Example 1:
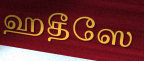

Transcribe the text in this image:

ஹதீஸே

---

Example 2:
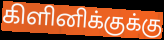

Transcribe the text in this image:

கிளினிக்குக்கு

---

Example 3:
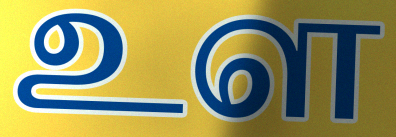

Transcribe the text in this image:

உள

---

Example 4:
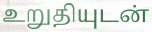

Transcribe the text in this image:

உறுதியுடன்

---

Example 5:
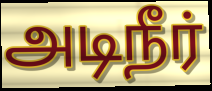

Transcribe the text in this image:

அடிநீர்